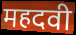
महदवी